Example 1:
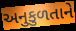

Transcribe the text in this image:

અનુકુળતાને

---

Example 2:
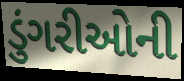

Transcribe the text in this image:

ડુંગરીઓની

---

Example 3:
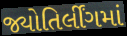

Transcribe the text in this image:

જ્યોતિર્લીંગમાં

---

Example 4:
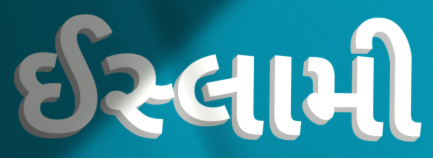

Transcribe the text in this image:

ઈસ્લામી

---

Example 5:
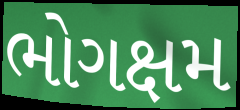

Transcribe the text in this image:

ભોગક્ષમ